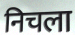
निचला